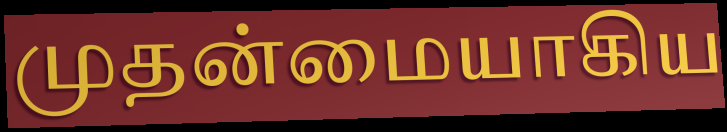
முதன்மையாகிய